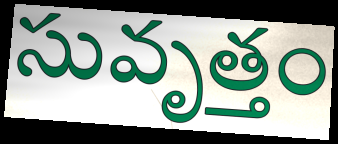
సువృత్తం